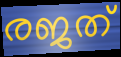
രജത്